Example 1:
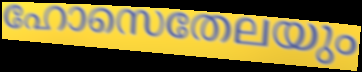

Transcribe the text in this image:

ഹോസെതേലയും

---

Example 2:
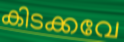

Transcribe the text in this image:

കിടക്കവേ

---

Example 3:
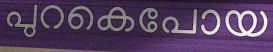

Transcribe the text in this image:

പുറകെപോയ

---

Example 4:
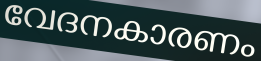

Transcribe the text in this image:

വേദനകാരണം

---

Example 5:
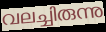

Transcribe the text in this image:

വലച്ചിരുന്നു